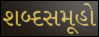
શબ્દસમૂહો